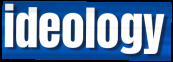
ideology